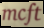
mcft